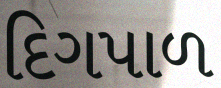
દિગપાળ